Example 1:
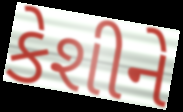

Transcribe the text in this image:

કેશીને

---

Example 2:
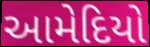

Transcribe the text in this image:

આમેદિયો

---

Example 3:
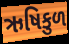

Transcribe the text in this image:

ઋષિકુળ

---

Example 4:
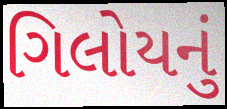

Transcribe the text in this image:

ગિલોયનું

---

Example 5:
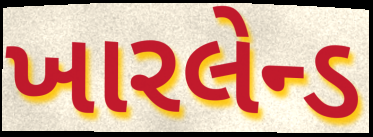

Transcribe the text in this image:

ખારલેન્ડ